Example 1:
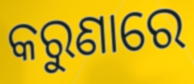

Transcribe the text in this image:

କରୁଣାରେ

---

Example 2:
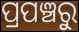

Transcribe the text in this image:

ପ୍ରପଞ୍ଚରୁ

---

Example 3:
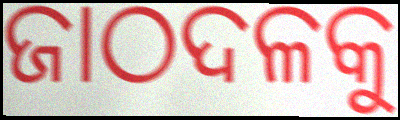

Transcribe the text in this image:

ଜାଠଦଳକୁ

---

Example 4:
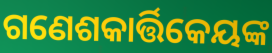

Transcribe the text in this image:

ଗଣେଶକାର୍ତ୍ତିକେୟଙ୍କ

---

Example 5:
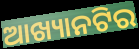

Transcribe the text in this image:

ଆଖ୍ୟାନଟିର